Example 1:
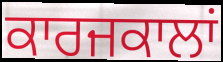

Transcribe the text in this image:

ਕਾਰਜਕਾਲਾਂ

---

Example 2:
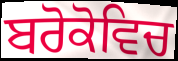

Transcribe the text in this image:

ਬਰੋਕੋਵਿਚ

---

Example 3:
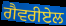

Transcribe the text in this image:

ਗੈਵਰੀਏਲ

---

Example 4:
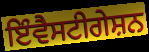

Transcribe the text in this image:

ਇੰਵੈਸਟੀਗੇਸ਼ਨ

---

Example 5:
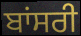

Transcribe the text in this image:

ਬਾਂਸਰੀ